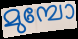
മുമ്പോ